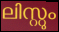
ലിസ്റ്റും